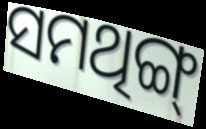
ସମଥିଙ୍ଗ୍